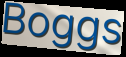
Boggs